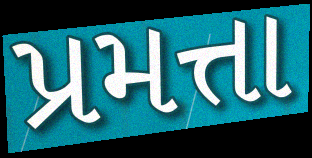
પ્રમત્તા